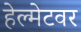
हेल्मेटवर